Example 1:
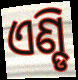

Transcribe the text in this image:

ଏଣ୍ଡି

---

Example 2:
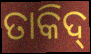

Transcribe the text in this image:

ତାକିଦ୍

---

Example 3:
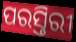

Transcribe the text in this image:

ପରସ୍ତିରୀ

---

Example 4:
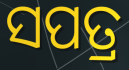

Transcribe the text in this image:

ସପତ୍ର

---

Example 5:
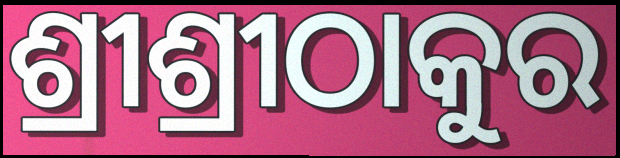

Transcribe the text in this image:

ଶ୍ରୀଶ୍ରୀଠାକୁର